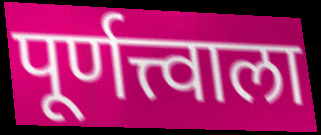
पूर्णत्त्वाला